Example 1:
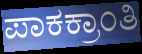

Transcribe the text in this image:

ಪಾಕಕ್ರಾಂತಿ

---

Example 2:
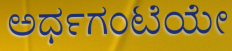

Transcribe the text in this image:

ಅರ್ಧಗಂಟೆಯೇ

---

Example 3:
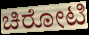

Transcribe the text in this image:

ಚಿರೋಟಿ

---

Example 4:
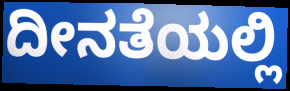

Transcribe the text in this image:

ದೀನತೆಯಲ್ಲಿ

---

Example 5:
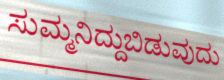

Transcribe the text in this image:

ಸುಮ್ಮನಿದ್ದುಬಿಡುವುದು